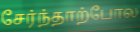
சேர்ந்தாற்போல